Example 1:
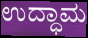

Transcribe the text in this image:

ಉದ್ಧಾಮ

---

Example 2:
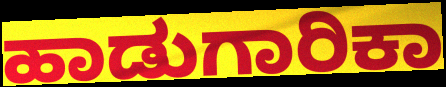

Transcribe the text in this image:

ಹಾಡುಗಾರಿಕಾ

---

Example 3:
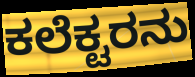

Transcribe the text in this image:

ಕಲೆಕ್ಟರನು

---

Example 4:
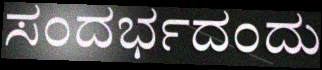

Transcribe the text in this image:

ಸಂದರ್ಭದಂದು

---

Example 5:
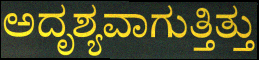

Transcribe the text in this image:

ಅದೃಶ್ಯವಾಗುತ್ತಿತ್ತು